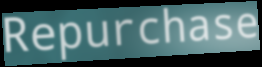
Repurchase